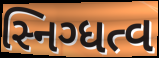
સ્નિગ્ધત્વ